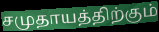
சமுதாயத்திற்கும்